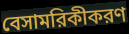
বেসামরিকীকরণ